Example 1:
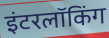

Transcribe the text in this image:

इंटरलॉकिंग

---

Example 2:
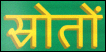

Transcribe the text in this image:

स्रोतों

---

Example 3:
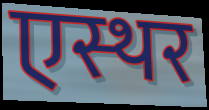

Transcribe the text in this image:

एस्थर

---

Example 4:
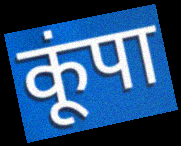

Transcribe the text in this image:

कूंपा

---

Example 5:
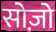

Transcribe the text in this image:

सोज़ो